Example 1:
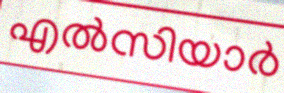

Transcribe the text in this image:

എൽസിയാർ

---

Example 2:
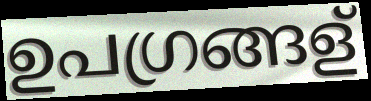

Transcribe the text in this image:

ഉപഗ്രങ്ങള്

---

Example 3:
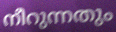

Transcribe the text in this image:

നീറുന്നതും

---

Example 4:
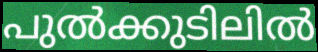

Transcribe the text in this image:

പുൽക്കുടിലിൽ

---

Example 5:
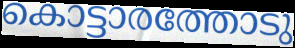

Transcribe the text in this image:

കൊട്ടാരത്തോടു